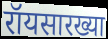
रॉयसारख्या